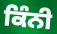
ਕਿੰਨੀ